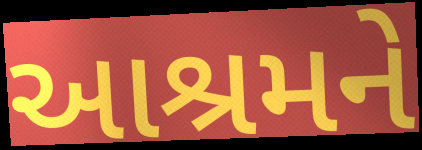
આશ્રમને